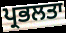
ਪ੍ਰਭਲਤਾ